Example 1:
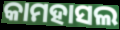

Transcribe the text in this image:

କାମହାସଲ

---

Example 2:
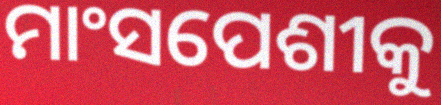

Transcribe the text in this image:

ମାଂସପେଶୀକୁ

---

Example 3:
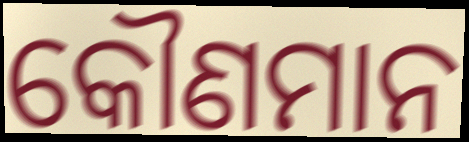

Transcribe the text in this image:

କୌଣମାନ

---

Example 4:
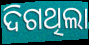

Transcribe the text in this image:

ଦିଗଥିଲା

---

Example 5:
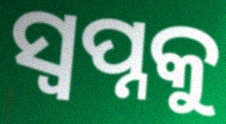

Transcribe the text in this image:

ସ୍ୱପ୍ନକୁ